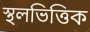
স্থলভিত্তিক